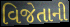
વિજેતાની